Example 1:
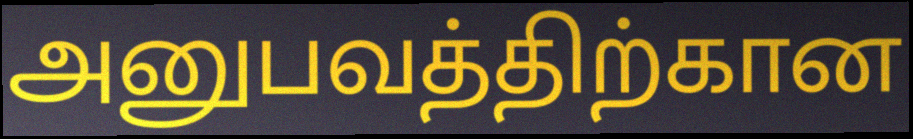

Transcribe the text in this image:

அனுபவத்திற்கான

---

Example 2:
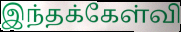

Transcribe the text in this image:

இந்தக்கேள்வி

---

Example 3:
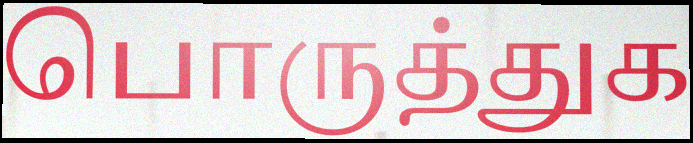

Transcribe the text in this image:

பொருத்துக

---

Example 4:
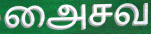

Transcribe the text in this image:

அைசவ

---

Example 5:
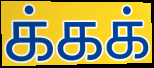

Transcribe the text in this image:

க்கக்